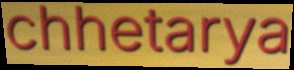
chhetarya